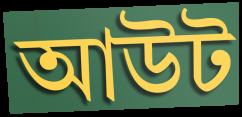
আউট